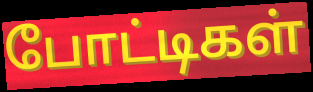
போட்டிகள்